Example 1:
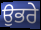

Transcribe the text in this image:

ਉਭਰੇ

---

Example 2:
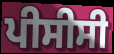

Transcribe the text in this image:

ਪੀਸੀਸੀ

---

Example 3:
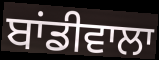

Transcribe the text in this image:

ਬਾਂਡੀਵਾਲਾ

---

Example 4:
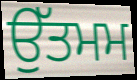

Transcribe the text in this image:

ਉੱਤਮਮ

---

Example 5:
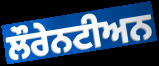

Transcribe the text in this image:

ਲੌਰੇਨਟੀਅਨ